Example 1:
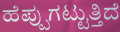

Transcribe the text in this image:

ಹೆಪ್ಪುಗಟ್ಟುತ್ತಿದೆ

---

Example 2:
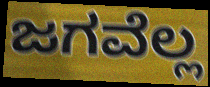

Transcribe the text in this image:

ಜಗವೆಲ್ಲ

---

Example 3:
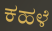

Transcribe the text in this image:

ಕಹಳೆ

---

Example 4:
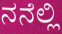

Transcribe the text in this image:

ನನೆಲ್ಲಿ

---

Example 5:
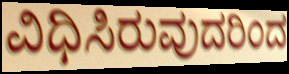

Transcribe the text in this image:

ವಿಧಿಸಿರುವುದರಿಂದ